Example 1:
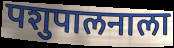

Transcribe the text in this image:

पशुपालनाला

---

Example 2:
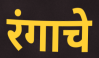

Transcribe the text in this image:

रंगाचे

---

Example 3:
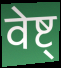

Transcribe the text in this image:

वेष्ट्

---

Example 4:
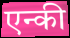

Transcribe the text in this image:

एन्की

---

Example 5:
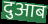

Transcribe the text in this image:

दुआब